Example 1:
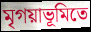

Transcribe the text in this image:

মৃগয়াভূমিতে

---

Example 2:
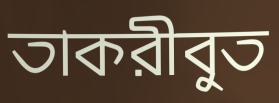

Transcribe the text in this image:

তাকরীবুত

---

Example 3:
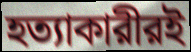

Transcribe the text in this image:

হত্যাকারীরই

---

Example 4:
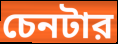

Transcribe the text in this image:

চেনটার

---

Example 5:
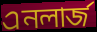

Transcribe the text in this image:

এনলার্জ